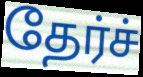
தேர்ச்